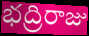
భద్రిరాజు